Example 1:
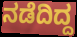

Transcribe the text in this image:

ನಡೆದಿದ್ದ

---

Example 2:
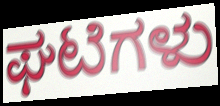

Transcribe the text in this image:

ಘಟೆಗಳು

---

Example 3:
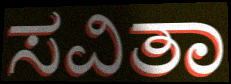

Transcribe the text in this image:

ಸವಿತಾ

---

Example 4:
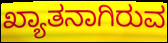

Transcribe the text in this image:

ಖ್ಯಾತನಾಗಿರುವ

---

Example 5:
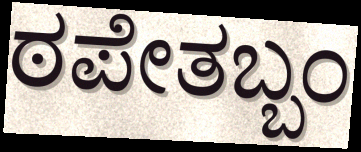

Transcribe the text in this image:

ಠಪೇತಬ್ಬಂ